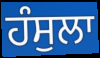
ਹੰਸੁਲਾ